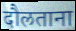
दौलताना